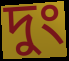
দুং